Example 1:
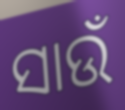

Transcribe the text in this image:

ସାଉଁ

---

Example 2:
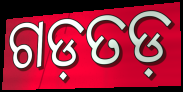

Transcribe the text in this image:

ଗଡ଼ତଡ଼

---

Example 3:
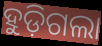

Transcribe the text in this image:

ହୁଡ଼ିଗଲା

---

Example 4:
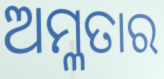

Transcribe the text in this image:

ଅମ୍ଳତାର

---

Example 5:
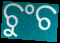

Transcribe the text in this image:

ଚୁଂଚ